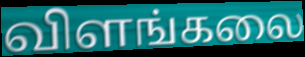
விளங்கலை